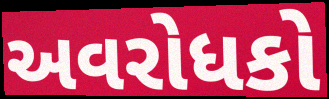
અવરોધકો